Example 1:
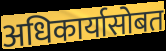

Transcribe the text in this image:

अधिकार्यासोबत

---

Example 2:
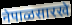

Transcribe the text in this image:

नेपाळसारखे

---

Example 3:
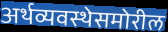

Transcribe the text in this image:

अर्थव्यवस्थेसमोरील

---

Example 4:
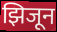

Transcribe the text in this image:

झिजून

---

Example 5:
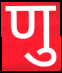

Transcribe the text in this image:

णु